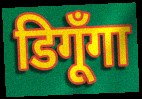
डिगूँगा